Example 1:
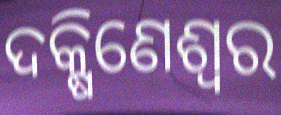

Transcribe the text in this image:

ଦକ୍ଷିଣେଶ୍ୱର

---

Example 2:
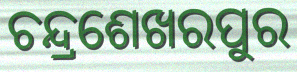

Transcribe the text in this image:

ଚନ୍ଦ୍ରଶେଖରପୁର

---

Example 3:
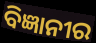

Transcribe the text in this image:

ବିଜ୍ଞାନୀର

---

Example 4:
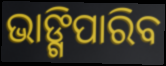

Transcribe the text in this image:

ଭାଙ୍ଗିପାରିବ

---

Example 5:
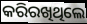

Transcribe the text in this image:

କରିରଖିଥିଲେ